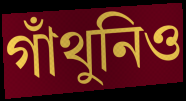
গাঁথুনিও